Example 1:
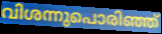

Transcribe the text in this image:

വിശന്നുപൊരിഞ്ഞ്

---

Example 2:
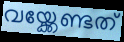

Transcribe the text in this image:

വയ്ക്കേണ്ടത്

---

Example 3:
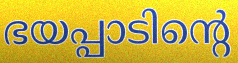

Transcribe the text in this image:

ഭയപ്പാടിന്റെ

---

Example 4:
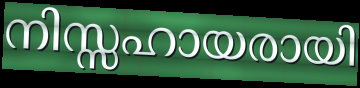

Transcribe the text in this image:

നിസ്സഹായരായി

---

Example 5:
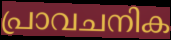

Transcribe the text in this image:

പ്രാവചനിക